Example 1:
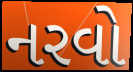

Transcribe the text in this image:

નરવો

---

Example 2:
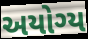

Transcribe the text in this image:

અયોગ્ય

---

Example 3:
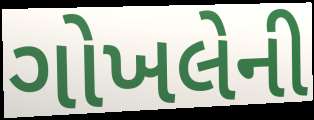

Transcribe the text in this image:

ગોખલેની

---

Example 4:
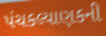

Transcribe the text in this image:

પંચકલ્યાણકની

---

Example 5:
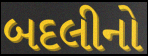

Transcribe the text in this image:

બદલીનો